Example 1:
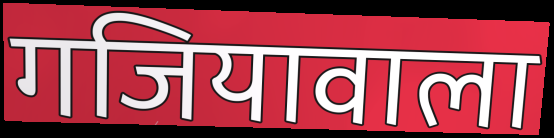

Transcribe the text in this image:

गजियावाला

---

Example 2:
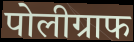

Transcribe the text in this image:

पोलीग्राफ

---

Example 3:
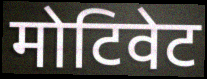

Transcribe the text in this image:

मोटिवेट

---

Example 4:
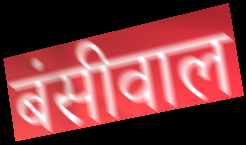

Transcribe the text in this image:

बंसीवाल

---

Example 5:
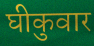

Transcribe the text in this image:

घीकुवार